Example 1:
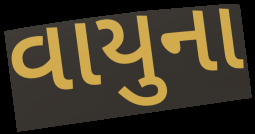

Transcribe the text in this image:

વાયુના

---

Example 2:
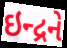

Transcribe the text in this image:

ઇન્દ્રને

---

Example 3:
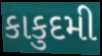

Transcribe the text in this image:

કાકુદમી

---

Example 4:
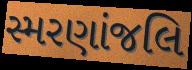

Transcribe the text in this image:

સ્મરણાંજલિ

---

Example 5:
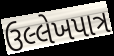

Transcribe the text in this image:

ઉલ્લેખપાત્ર